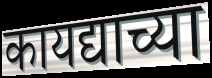
कायद्याच्या